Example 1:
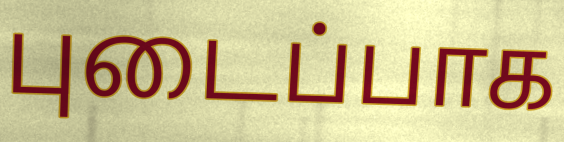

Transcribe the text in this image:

புடைப்பாக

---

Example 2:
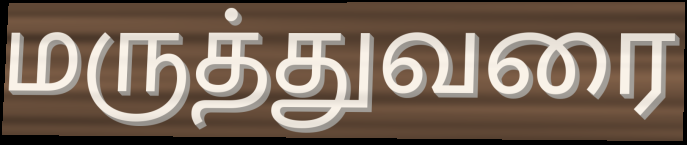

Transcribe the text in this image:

மருத்துவரை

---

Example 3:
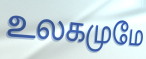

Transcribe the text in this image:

உலகமுமே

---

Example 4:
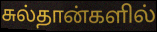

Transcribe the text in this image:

சுல்தான்களில்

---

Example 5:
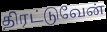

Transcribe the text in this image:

திரட்டுவேன்